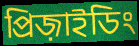
প্রিজ়াইডিং